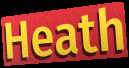
Heath